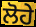
ਲੋਹੇ